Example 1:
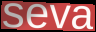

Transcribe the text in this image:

seva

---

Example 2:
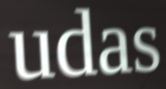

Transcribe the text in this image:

udas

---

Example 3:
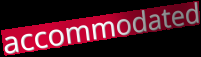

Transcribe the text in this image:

accommodated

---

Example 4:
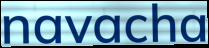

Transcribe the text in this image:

navacha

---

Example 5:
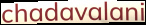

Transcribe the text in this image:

chadavalani